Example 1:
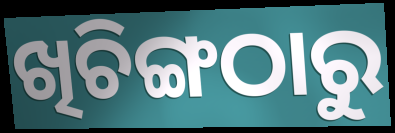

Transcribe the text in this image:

ଖିଚିଙ୍ଗଠାରୁ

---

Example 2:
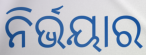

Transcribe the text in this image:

ନିର୍ଭୟାର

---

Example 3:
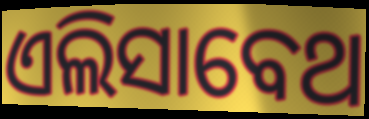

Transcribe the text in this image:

ଏଲିସାବେଥ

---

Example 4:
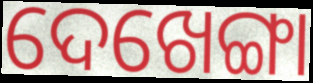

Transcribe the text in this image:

ଦେଖେଙ୍ଗା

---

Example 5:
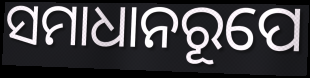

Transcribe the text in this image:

ସମାଧାନରୂପେ